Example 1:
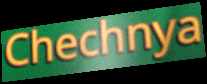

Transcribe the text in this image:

Chechnya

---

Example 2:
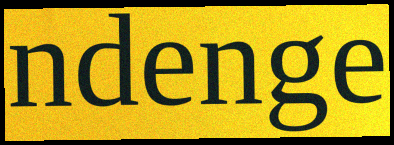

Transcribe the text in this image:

ndenge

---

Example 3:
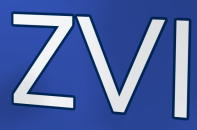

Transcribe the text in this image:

ZVI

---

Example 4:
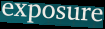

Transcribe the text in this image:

exposure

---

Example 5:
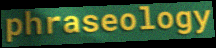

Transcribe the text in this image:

phraseology